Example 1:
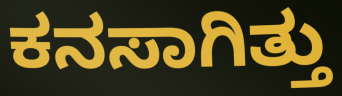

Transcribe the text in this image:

ಕನಸಾಗಿತ್ತು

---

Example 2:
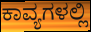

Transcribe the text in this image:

ಕಾವ್ಯಗಳಲ್ಲಿ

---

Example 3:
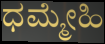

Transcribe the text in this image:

ಧಮ್ಮೇಹಿ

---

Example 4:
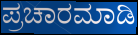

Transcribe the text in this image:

ಪ್ರಚಾರಮಾಡಿ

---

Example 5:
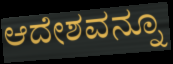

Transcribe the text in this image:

ಆದೇಶವನ್ನೂ